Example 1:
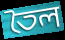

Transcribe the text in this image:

তৈল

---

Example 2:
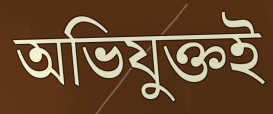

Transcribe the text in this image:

অভিযুক্তই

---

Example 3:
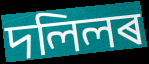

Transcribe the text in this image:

দলিলৰ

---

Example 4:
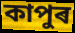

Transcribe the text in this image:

কাপুৰ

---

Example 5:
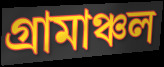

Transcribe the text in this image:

গ্ৰামাঞ্চল